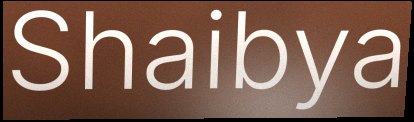
Shaibya